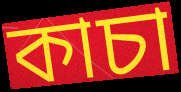
কাচা